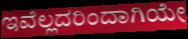
ಇವೆಲ್ಲದರಿಂದಾಗಿಯೇ